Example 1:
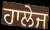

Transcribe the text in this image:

ਹਾਲੇਜ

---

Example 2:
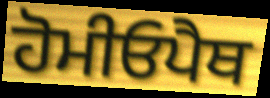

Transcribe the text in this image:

ਹੋਮੀਓਪੈਥ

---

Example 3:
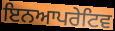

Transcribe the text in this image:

ਇਨਆਪਰੇਟਿਵ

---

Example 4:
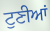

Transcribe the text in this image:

ਟੁਣੀਆਂ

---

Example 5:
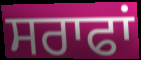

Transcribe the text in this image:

ਸਰਾਫਾਂ